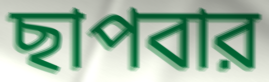
ছাপবার